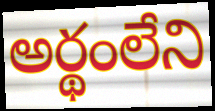
అర్థంలేని